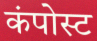
कंपोस्ट